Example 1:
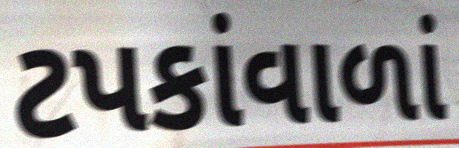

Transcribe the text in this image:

ટપકાંવાળાં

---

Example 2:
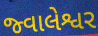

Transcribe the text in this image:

જ્વાલેશ્વર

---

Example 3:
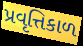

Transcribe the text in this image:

પ્રવૃત્તિકાળ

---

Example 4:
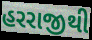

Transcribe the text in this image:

હરરાજીથી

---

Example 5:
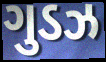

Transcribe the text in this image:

ગુડઝ